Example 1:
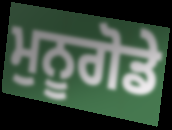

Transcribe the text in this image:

ਮੁਨੂਗੋਡੇ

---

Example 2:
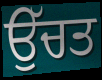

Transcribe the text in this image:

ਉੱਚਤ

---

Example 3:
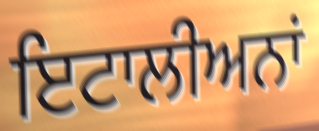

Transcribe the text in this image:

ਇਟਾਲੀਅਨਾਂ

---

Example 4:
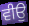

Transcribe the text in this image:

ਵੀਉ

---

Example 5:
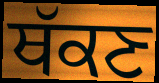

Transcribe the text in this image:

ਥੱਕਣ